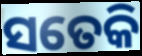
ସତେକି